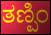
ತಣ್ಪಿಂ